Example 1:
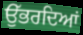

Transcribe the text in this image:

ਉੱਭਰਦਿਆਂ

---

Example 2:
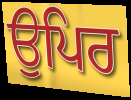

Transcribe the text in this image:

ਉਪਿਰ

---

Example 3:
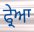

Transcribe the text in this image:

ਫ੍ਰੇਆ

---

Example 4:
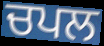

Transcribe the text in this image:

ਚਪਲ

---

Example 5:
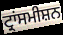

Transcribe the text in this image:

ਟ੍ਰਾਂਸਮੀਸ਼ਨ